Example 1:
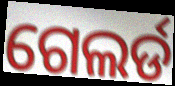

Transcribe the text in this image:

ଗେଲର୍ଡ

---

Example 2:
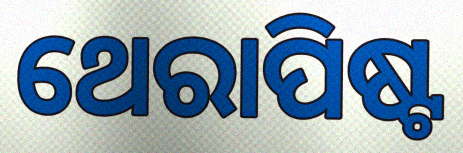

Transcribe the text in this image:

ଥେରାପିଷ୍ଟ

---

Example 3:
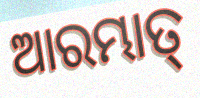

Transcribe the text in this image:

ଆରମ୍ଭାତ୍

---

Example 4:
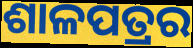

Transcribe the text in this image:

ଶାଳପତ୍ରର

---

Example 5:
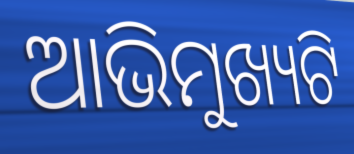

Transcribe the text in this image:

ଆଭିମୁଖ୍ୟଟି